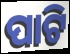
ପାଟି